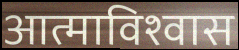
आत्माविश्वास